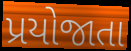
પ્રયોજાતા